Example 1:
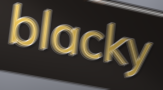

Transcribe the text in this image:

blacky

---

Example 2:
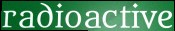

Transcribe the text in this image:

radioactive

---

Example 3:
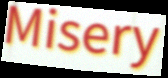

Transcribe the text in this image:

Misery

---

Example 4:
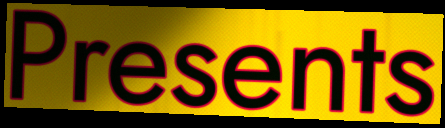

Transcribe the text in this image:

Presents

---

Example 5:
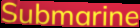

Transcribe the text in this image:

Submarine